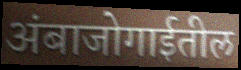
अंबाजोगाईतील